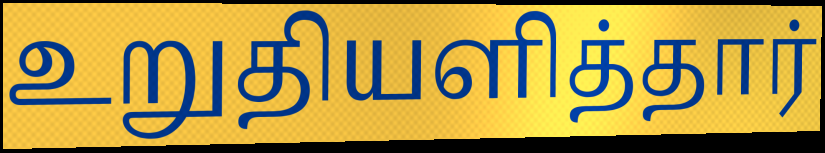
உறுதியளித்தார்